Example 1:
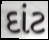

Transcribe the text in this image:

દાંટ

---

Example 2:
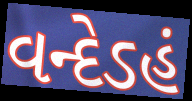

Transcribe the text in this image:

વન્દેઽહં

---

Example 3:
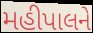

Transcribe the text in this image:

મહીપાલને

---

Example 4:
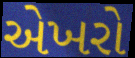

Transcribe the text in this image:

એખરો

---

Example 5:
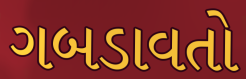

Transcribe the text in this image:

ગબડાવતો